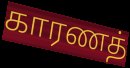
காரணத்